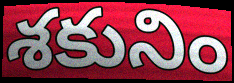
శకునిం